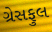
ગ્રેસફુલ